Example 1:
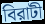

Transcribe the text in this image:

বিরাটী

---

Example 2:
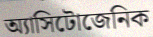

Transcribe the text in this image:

অ্যাসিটোজেনিক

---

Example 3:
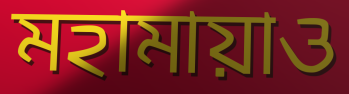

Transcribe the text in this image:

মহামায়াও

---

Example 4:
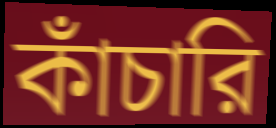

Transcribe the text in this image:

কাঁচারি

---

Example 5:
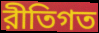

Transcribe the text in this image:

রীতিগত